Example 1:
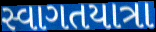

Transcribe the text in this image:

સ્વાગતયાત્રા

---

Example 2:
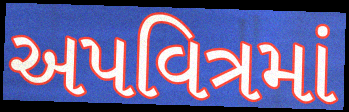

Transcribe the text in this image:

અપવિત્રમાં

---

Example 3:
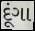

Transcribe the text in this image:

દૂંગા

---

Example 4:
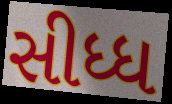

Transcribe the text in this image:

સીધ્ધ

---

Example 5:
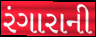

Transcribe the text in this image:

રંગારાની